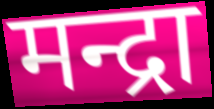
मन्द्रा